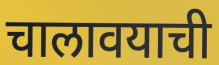
चालावयाची